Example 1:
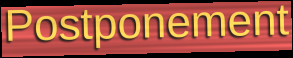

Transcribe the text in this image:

Postponement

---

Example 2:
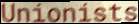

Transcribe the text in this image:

Unionists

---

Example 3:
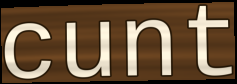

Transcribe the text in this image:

cunt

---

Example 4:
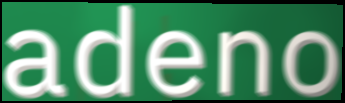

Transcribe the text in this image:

adeno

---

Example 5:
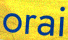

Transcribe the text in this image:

orai